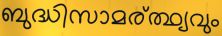
ബുദ്ധിസാമര്ത്ഥ്യവും